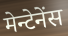
मेन्टेनेंस